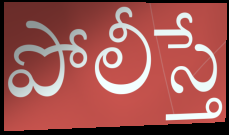
పోలీస్తే